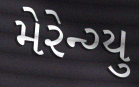
મેરેન્ગ્યુ